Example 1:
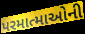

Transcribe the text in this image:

પરમાત્માઓની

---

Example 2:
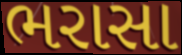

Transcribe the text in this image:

ભરાસા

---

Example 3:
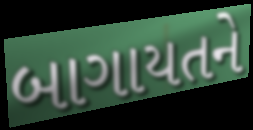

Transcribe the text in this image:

બાગાયતને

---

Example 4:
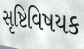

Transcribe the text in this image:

સૃષ્ટિવિષયક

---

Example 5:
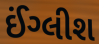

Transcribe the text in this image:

ઈંગ્લીશ